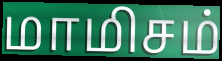
மாமிசம்